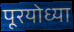
पूरयोध्या